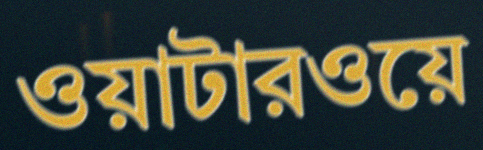
ওয়াটারওয়ে